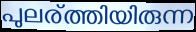
പുലര്ത്തിയിരുന്ന